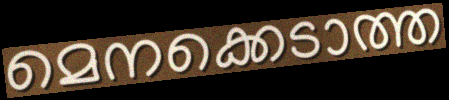
മെനക്കെടാത്ത